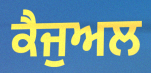
ਕੈਜੁਅਲ